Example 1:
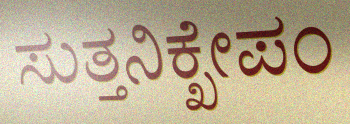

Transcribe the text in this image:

ಸುತ್ತನಿಕ್ಖೇಪಂ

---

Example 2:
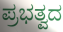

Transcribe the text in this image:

ಪ್ರಭತ್ವದ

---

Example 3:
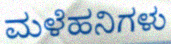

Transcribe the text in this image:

ಮಳೆಹನಿಗಳು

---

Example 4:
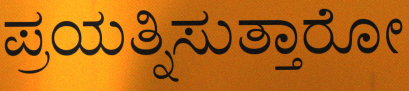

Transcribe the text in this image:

ಪ್ರಯತ್ನಿಸುತ್ತಾರೋ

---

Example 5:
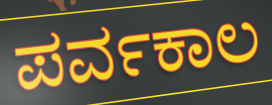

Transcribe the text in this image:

ಪರ್ವಕಾಲ